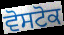
ਵੋਸਟੋਕ